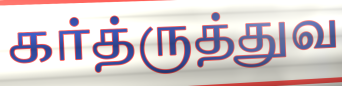
கர்த்ருத்துவ